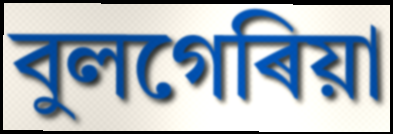
বুলগেৰিয়া